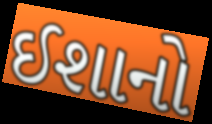
ઈશાનો